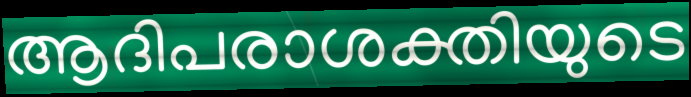
ആദിപരാശക്തിയുടെ